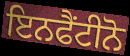
ਇਨਫੈਂਟੀਨੋ